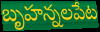
బృహన్నలపేట